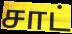
சாட்